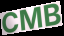
CMB